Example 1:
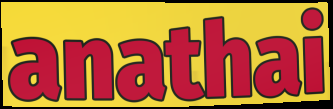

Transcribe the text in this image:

anathai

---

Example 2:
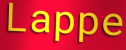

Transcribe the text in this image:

Lappe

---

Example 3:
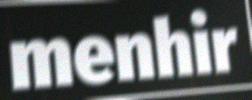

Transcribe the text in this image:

menhir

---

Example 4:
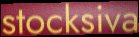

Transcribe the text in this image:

stocksiva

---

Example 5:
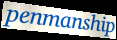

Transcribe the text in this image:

penmanship